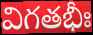
విగతభీః